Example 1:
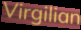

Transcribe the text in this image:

Virgilian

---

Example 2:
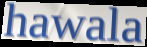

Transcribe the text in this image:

hawala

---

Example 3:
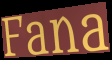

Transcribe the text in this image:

Fana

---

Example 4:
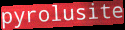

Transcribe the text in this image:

pyrolusite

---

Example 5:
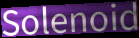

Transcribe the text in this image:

Solenoid